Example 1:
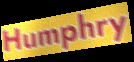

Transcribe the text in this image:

Humphry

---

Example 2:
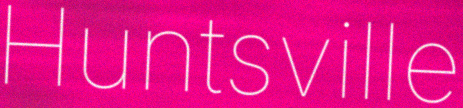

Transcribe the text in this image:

Huntsville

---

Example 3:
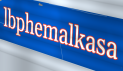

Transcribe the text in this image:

lbphemalkasa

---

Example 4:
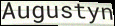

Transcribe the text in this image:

Augustyn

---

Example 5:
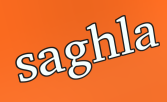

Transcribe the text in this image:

saghla